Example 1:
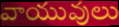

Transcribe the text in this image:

వాయువులు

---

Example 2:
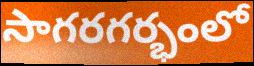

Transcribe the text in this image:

సాగరగర్భంలో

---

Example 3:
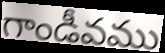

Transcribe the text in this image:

గాండీవము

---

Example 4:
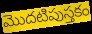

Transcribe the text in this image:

మొదటిపుస్తకం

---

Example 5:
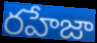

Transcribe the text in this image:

రహేజా